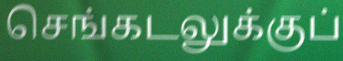
செங்கடலுக்குப்